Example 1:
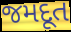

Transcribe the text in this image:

જમદૂત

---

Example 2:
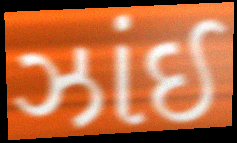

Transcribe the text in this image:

ઝાંઈ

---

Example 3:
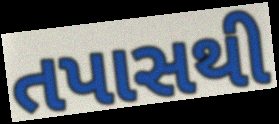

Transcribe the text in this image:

તપાસથી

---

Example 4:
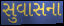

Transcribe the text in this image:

સુવાસના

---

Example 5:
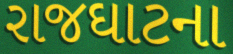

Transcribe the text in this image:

રાજઘાટના